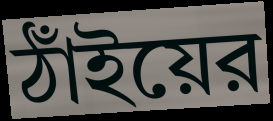
ঠাঁইয়ের